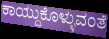
ಕಾಯ್ದುಕೊಳ್ಳುವಂತೆ